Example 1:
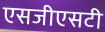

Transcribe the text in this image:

एसजीएसटी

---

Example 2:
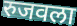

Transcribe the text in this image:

रुजवला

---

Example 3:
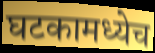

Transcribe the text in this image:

घटकामध्येच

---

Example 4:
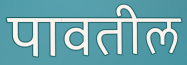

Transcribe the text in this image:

पावतील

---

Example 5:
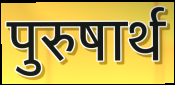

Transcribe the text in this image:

पुरुषार्थ